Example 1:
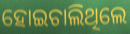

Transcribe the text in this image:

ହୋଇଚାଲିଥିଲେ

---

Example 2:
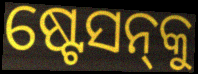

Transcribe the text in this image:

ଷ୍ଟେସନ୍‍କୁ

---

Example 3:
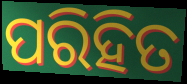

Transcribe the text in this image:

ପରିହିତ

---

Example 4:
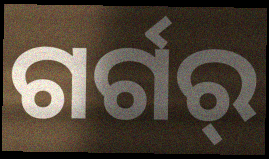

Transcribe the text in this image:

ଗର୍ଗର୍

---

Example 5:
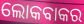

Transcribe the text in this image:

ଲୋକବାକର